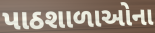
પાઠશાળાઓના